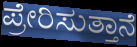
ಪ್ರೇರಿಸುತ್ತಾನೆ